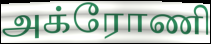
அக்ரோணி